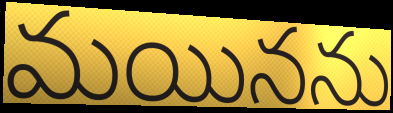
మయినను